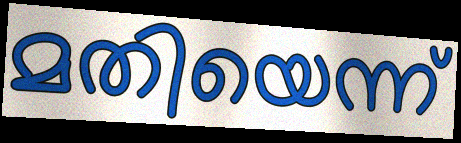
മതിയെന്ന്